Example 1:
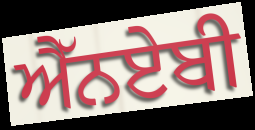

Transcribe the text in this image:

ਐੱਨਏਬੀ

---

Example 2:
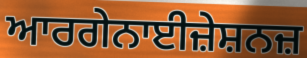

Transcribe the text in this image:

ਆਰਗੇਨਾਈਜ਼ੇਸ਼ਨਜ਼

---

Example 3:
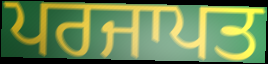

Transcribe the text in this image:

ਪਰਜਾਪਤ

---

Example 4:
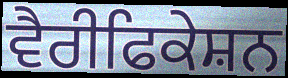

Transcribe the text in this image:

ਵੈਰੀਫਿਕੇਸ਼ਨ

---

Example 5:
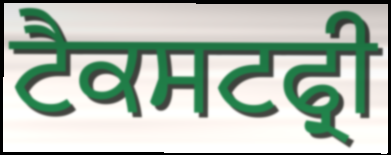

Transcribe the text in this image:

ਟੈਕਸਟਫ੍ਰੀ